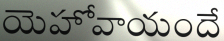
యెహోవాయందే